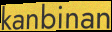
kanbinan